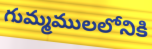
గుమ్మములలోనికి